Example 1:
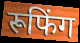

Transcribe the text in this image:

रूफिंग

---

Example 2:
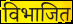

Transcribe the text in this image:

विभाजित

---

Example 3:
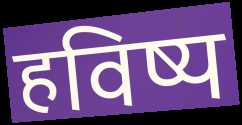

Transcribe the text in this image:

हविष्य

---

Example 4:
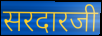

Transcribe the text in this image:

सरदारजी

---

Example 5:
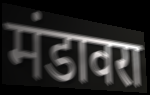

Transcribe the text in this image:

मंडावरा